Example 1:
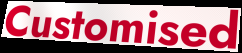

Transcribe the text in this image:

Customised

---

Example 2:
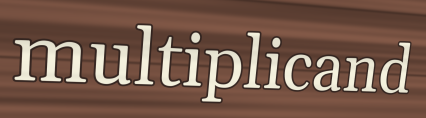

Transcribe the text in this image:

multiplicand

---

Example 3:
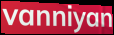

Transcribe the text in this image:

vanniyan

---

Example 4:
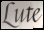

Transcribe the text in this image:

Lute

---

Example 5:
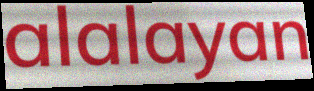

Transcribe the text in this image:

alalayan